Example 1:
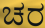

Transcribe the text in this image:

ಚರ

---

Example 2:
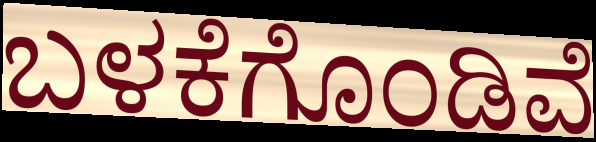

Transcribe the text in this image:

ಬಳಕೆಗೊಂಡಿವೆ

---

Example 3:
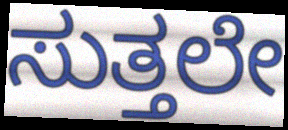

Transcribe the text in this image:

ಸುತ್ತಲೇ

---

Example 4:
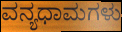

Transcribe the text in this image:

ವನ್ಯಧಾಮಗಳು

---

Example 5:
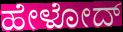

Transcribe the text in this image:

ಹೇಳೋದ್